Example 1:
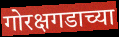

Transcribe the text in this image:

गोरक्षगडाच्या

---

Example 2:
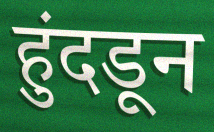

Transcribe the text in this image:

हुंदडून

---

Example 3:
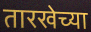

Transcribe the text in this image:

तारखेच्या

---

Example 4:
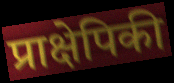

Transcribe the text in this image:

प्राक्षेपिकी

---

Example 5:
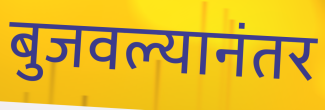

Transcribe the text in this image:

बुजवल्यानंतर